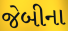
જેબીના